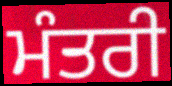
ਮੰਤਰੀ